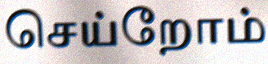
செய்றோம்